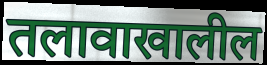
तलावाखालील